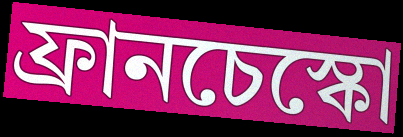
ফ্রানচেস্কো